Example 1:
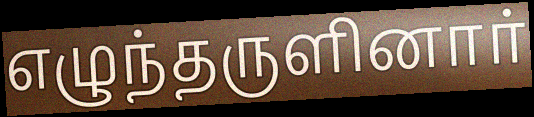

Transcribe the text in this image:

எழுந்தருளினார்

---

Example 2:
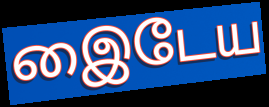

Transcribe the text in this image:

இைடேய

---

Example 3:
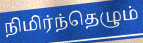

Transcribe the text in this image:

நிமிர்ந்தெழும்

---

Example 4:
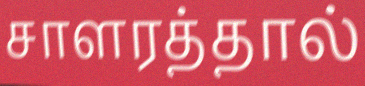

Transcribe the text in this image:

சாளரத்தால்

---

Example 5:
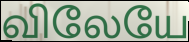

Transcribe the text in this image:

விலேயே